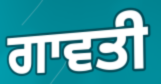
ਗਾਵਤੀ